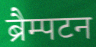
ब्रैम्पटन